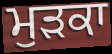
ਮੁੜਕਾ